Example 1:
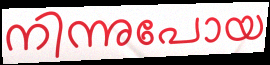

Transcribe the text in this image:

നിന്നുപോയ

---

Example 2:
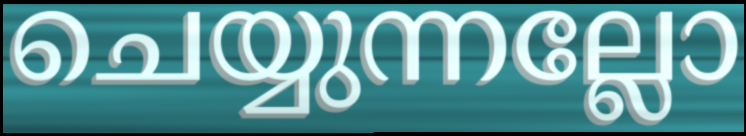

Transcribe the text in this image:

ചെയ്യുന്നല്ലോ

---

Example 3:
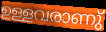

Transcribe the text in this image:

ഉള്ളവരാണു്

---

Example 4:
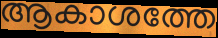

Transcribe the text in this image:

ആകാശത്തേ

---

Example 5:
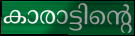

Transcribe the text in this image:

കാരാട്ടിന്റെ